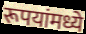
रूपयांमध्ये